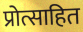
प्रोत्साहित